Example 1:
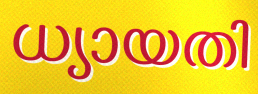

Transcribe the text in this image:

ധ്യായതി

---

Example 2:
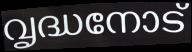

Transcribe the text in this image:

വൃദ്ധനോട്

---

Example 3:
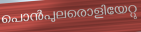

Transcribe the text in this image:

പൊൻപുലരൊളിയേറ്റു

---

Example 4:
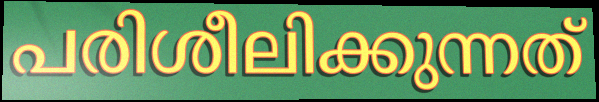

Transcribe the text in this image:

പരിശീലിക്കുന്നത്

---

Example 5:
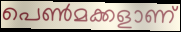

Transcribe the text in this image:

പെൺമക്കളാണ്